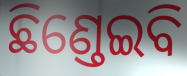
ଛିଣ୍ଡେଇବି